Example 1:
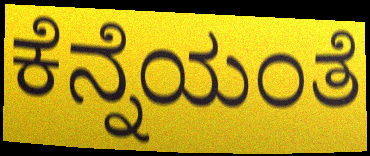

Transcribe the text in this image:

ಕೆನ್ನೆಯಂತೆ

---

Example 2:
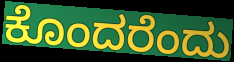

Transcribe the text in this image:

ಕೊಂದರೆಂದು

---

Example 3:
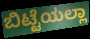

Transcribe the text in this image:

ಬಿಟ್ಟೆಯಲ್ಲಾ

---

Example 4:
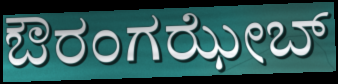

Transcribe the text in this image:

ಔರಂಗಝೇಬ್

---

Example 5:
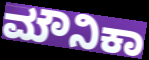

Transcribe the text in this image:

ಮೌನಿಕಾ